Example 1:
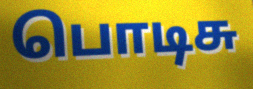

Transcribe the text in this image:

பொடிசு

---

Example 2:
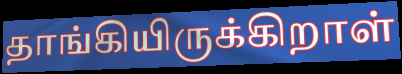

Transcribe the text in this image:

தாங்கியிருக்கிறாள்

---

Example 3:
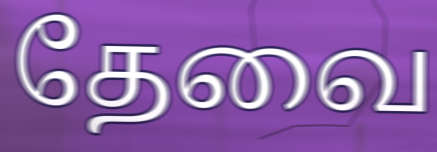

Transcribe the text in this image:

தேவை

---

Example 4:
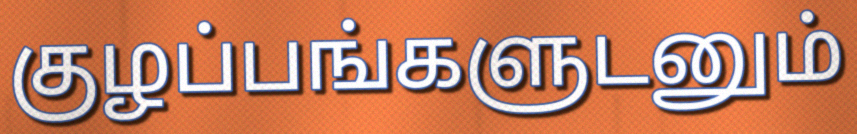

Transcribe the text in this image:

குழப்பங்களுடனும்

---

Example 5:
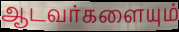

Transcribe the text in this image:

ஆடவர்களையும்